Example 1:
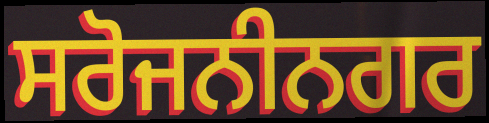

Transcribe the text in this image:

ਸਰੋਜਨੀਨਗਰ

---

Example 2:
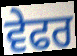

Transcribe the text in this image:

ਵੇਫਰ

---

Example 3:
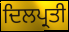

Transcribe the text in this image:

ਦਿਲਪ੍ਰਤੀ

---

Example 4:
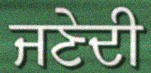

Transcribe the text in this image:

ਜਣੇਦੀ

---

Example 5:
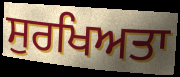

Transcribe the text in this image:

ਸੁਰਖਿਅਤਾ